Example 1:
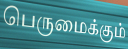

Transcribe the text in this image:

பெருமைக்கும்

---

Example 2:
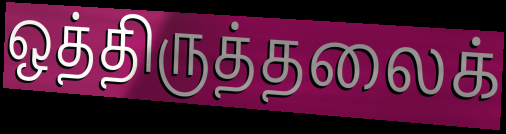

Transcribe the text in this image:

ஒத்திருத்தலைக்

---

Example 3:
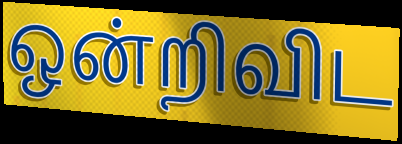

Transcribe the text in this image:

ஒன்றிவிட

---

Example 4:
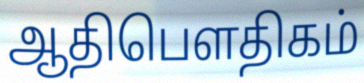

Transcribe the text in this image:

ஆதிபௌதிகம்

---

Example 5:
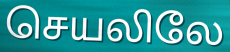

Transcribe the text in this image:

செயலிலே